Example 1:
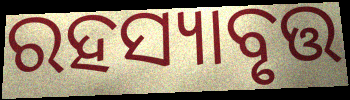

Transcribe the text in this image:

ରହସ୍ୟାବୃତ୍ତ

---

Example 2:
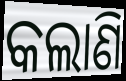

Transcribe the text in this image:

କଲାଣି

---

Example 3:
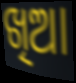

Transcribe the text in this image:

ଖିଆ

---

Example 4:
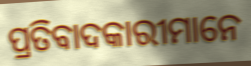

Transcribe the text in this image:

ପ୍ରତିବାଦକାରୀମାନେ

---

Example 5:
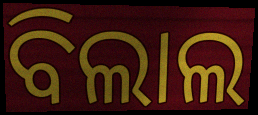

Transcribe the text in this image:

ବିଲାଲ